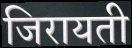
जिरायती